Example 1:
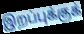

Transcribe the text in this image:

இறப்புக்குக்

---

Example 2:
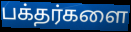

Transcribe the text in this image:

பக்தர்களை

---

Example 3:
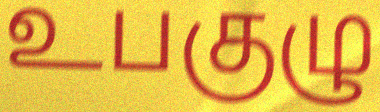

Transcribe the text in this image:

உபகுழு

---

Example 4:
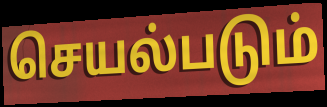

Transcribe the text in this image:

செயல்படும்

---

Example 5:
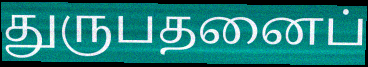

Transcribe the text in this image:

துருபதனைப்